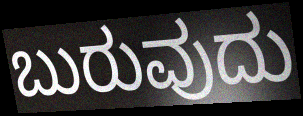
ಬುರುವುದು